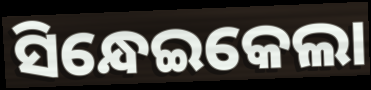
ସିନ୍ଧେଇକେଲା